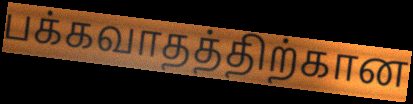
பக்கவாதத்திற்கான